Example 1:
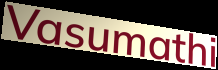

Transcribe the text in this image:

Vasumathi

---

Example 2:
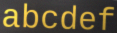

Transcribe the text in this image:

abcdef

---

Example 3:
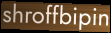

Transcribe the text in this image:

shroffbipin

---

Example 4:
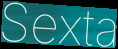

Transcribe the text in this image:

Sexta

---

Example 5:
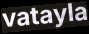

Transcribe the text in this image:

vatayla